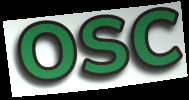
osc